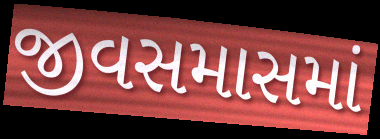
જીવસમાસમાં